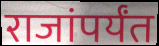
राजांपर्यंत